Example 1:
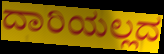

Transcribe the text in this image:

ದಾರಿಯಲ್ಲದ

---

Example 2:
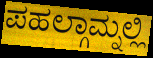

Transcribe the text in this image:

ಪಹಲ್ಗಾಮ್ನಲ್ಲಿ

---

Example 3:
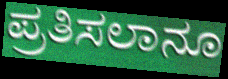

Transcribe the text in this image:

ಪ್ರತಿಸಲಾನೂ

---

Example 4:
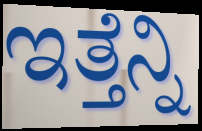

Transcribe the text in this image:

ಇತ್ತೆನ್ನಿ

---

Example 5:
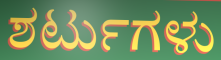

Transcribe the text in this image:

ಶರ್ಟುಗಳು